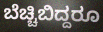
ಬೆಚ್ಚಿಬಿದ್ದರೂ